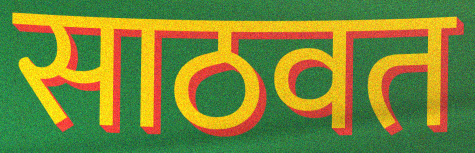
साठवत